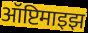
ऑप्टिमाइझ